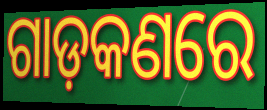
ଗାଡ଼କଣରେ